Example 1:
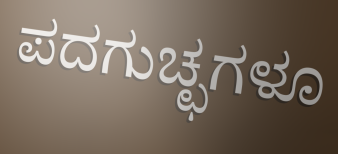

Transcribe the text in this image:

ಪದಗುಚ್ಛಗಳೂ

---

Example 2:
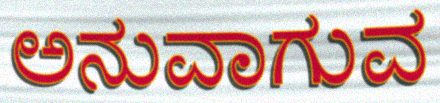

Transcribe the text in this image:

ಅನುವಾಗುವ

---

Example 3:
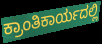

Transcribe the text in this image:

ಕ್ರಾಂತಿಕಾರ್ಯದಲ್ಲಿ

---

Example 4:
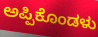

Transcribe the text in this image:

ಅಪ್ಪಿಕೊಂಡಳು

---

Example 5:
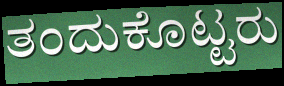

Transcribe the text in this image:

ತಂದುಕೊಟ್ಟರು